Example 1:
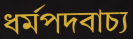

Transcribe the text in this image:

ধর্মপদবাচ্য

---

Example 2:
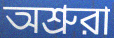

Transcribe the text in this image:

অশ্রুরা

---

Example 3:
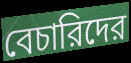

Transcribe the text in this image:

বেচারিদের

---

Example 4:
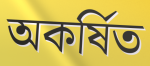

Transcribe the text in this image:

অকর্ষিত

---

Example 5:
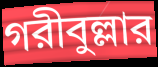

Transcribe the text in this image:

গরীবুল্লার